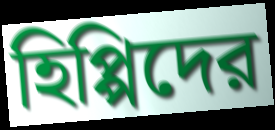
হিপ্পিদের